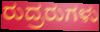
ರುದ್ರರುಗಳು